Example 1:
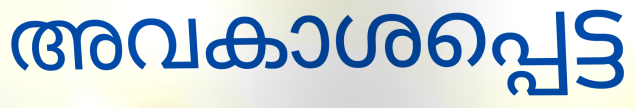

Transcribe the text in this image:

അവകാശപ്പെട്ട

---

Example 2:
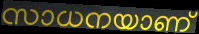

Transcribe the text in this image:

സാധനയാണ്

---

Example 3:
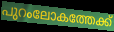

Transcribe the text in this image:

പുറംലോകത്തേക്ക്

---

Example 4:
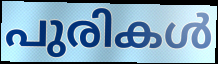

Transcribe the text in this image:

പുരികൾ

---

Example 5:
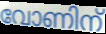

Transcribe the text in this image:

വോണിന്